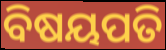
ବିଷୟପତି